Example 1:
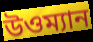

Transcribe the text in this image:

উওম্যান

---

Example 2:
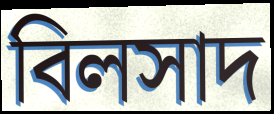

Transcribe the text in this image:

বিলসাদ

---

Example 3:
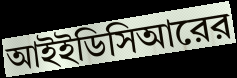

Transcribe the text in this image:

আইইডিসিআরের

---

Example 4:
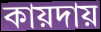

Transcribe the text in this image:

কায়দায়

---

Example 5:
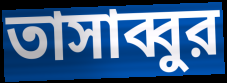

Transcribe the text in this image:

তাসাব্বুর